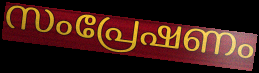
സംപ്രേഷണം